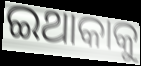
ଇଥାକାକୁ